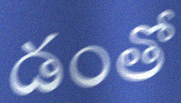
డంతో